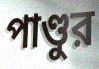
পাণ্ডুর